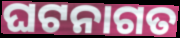
ଘଟନାଗତ